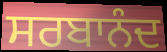
ਸਰਬਾਨੰਦ